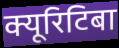
क्यूरिटिबा